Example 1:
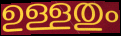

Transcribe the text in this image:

ഉള്ളതും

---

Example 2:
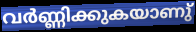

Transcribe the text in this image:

വർണ്ണിക്കുകയാണു്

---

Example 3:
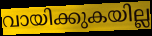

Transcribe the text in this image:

വായിക്കുകയില്ല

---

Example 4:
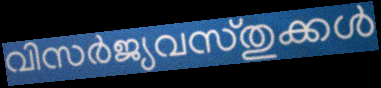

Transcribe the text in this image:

വിസർജ്യവസ്തുക്കൾ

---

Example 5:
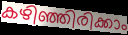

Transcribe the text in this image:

കഴിഞ്ഞിരിക്കാം